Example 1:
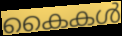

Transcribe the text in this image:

കൈകൾ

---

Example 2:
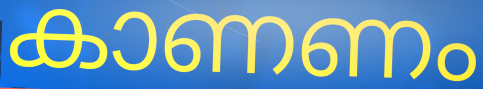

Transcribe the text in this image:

കാണണം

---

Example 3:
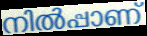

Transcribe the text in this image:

നിൽപ്പാണ്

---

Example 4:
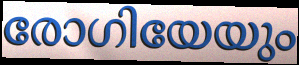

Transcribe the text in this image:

രോഗിയേയും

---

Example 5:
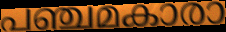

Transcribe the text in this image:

പഞ്ചമകാരാ